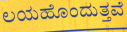
ಲಯಹೊಂದುತ್ತವೆ